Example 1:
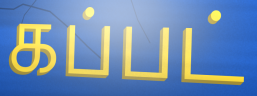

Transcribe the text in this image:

கப்பட்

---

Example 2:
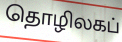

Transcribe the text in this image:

தொழிலகப்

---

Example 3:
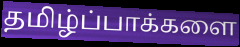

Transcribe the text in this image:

தமிழ்ப்பாக்களை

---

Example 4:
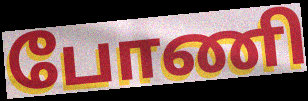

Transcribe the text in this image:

போணி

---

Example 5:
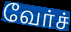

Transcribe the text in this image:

வேர்ச்